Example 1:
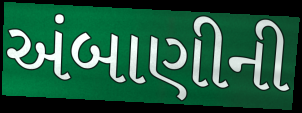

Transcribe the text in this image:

અંબાણીની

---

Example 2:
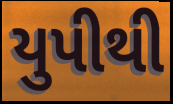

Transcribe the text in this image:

યુપીથી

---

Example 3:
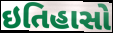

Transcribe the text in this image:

ઇતિહાસો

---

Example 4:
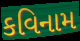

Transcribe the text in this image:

કવિનામ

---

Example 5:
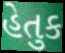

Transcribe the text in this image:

હેતુક